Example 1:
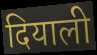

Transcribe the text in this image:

दियाली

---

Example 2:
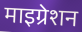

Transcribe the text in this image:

माइग्रेशन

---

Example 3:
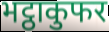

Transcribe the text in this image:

भट्ठाकुफर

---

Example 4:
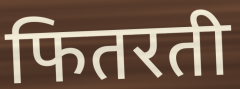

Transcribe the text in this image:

फितरती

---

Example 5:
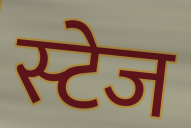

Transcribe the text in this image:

स्‍टेज